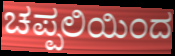
ಚಪ್ಪಲಿಯಿಂದ